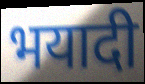
भयादी